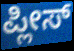
ಪ್ಲೀಸ್